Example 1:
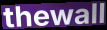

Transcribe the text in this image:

thewall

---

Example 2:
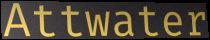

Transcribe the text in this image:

Attwater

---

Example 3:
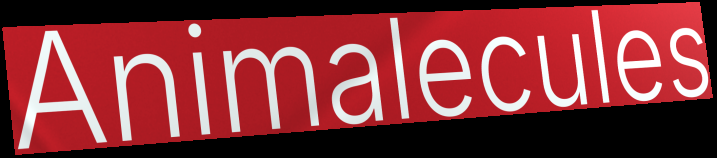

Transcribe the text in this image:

Animalecules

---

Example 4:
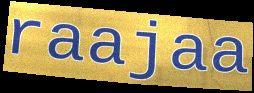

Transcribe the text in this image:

raajaa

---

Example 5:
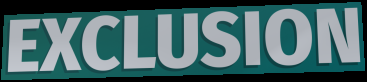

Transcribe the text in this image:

EXCLUSION